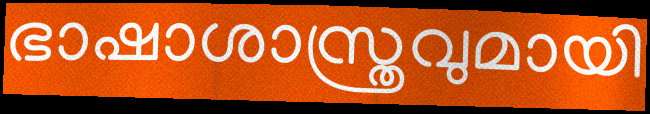
ഭാഷാശാസ്ത്രവുമായി